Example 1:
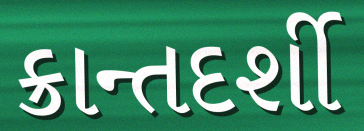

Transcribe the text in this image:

ક્રાન્તદર્શી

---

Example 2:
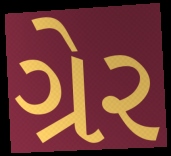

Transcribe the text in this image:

ગ્રેર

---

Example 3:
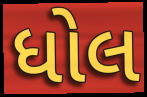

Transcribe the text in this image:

ધોલ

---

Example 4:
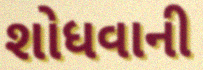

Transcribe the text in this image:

શોધવાની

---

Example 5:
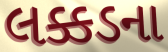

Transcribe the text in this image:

લક્કડના